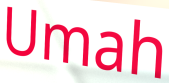
Umah